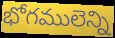
భోగములెన్ని